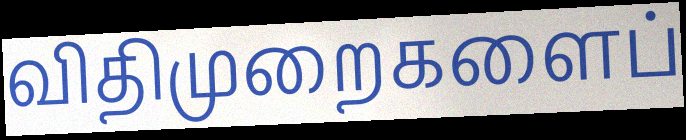
விதிமுறைகளைப்